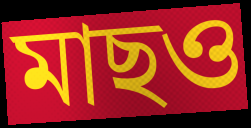
মাছও